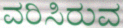
ವರಿಸಿರುವ